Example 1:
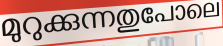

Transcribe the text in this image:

മുറുക്കുന്നതുപോലെ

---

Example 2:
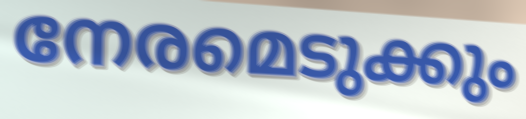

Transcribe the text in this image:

നേരമെടുക്കും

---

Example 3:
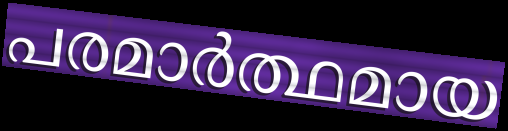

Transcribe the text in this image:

പരമാർത്ഥമായ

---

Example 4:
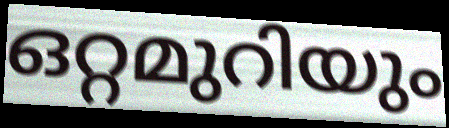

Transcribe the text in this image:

ഒറ്റമുറിയും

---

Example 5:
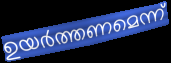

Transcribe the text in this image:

ഉയർത്തണമെന്ന്